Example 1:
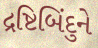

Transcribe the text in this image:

દ્રષ્ટિબિંદુને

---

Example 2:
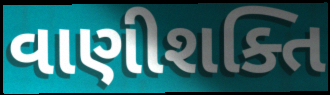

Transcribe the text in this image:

વાણીશક્તિ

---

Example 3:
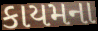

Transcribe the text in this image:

કાયમના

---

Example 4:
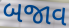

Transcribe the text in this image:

બજાવ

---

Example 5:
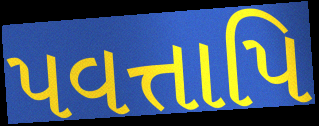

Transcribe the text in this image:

પવત્તાપિ